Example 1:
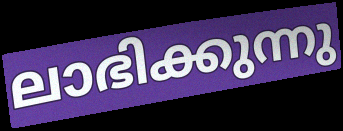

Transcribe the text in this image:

ലാഭിക്കുന്നു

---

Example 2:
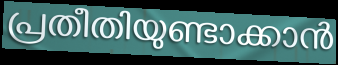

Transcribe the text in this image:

പ്രതീതിയുണ്ടാക്കാൻ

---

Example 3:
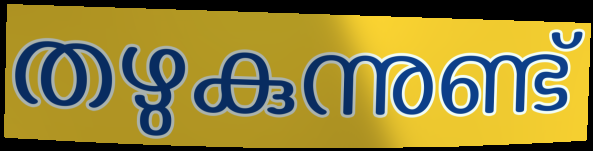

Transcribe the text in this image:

തഴുകുന്നുണ്ട്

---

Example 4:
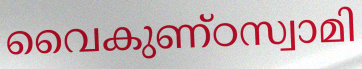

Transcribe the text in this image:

വൈകുണ്ഠസ്വാമി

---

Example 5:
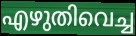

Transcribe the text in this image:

എഴുതിവെച്ച